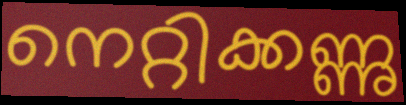
നെറ്റിക്കണ്ണു